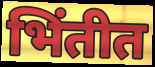
भिंतीत